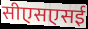
सीएसएसई